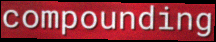
compounding